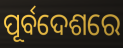
ପୂର୍ବଦେଶରେ